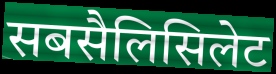
सबसैलिसिलेट